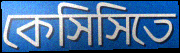
কেসিসিতে